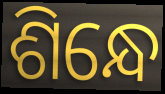
ଶିନ୍ଧେ